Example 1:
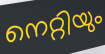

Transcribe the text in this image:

നെറ്റിയും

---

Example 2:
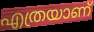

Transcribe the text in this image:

എത്രയാണ്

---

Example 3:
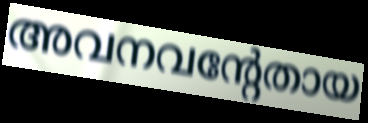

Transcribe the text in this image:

അവനവന്റേതായ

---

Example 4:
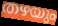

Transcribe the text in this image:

തഴയും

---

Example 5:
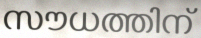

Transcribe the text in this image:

സൗധത്തിന്